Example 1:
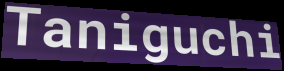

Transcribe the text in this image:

Taniguchi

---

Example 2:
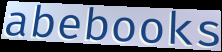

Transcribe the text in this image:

abebooks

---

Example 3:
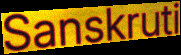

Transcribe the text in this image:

Sanskruti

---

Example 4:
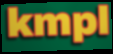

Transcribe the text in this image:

kmpl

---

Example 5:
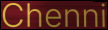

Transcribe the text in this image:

Chenni